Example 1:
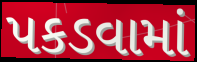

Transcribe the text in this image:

પકડવામાં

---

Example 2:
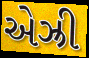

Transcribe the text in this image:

એઝ્રી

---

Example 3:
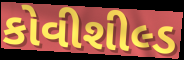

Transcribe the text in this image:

કોવીશીલ્ડ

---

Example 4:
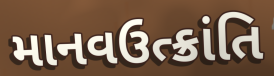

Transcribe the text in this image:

માનવઉત્ક્રાંતિ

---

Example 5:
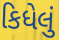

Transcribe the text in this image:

કિધેલું